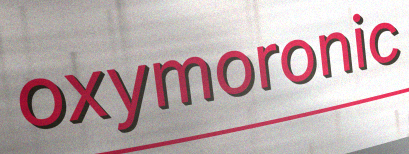
oxymoronic